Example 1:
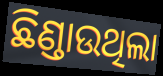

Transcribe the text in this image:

ଛିଣ୍ଡାଉଥିଲା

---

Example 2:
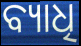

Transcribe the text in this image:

ବ୍ୟାଧି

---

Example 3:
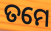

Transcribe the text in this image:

ତମେ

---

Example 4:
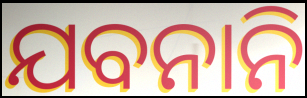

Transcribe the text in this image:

ଯବନାନି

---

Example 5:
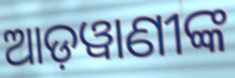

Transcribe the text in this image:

ଆଡ଼ୱାଣୀଙ୍କ